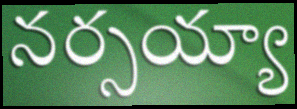
నర్సయ్యా